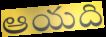
ఆయది